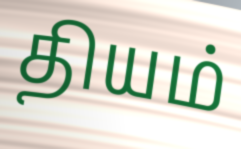
தியம்